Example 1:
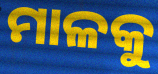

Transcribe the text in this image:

ମାଳକୁ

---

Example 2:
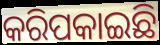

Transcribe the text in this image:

କରିପକାଇଛି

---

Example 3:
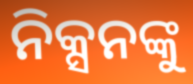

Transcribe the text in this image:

ନିକ୍ସନଙ୍କୁ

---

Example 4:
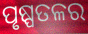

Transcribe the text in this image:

ପୃଷ୍ପତଳର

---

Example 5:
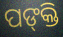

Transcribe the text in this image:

ପଙ୍‍କ୍ତି